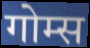
गोम्स